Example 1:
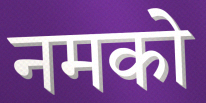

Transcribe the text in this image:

नमको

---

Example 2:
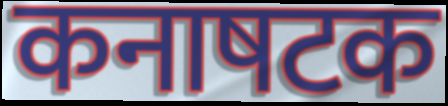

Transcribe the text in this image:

कनाषटक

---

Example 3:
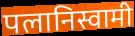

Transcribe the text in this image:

पलानिस्वामी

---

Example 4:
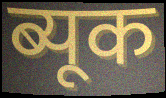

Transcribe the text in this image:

ब्यूक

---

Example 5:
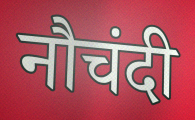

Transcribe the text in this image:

नौचंदी